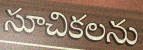
సూచికలను